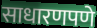
साधारणपणे